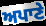
ਅਪਾਣੇ